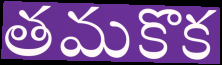
తమకొక